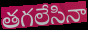
తగలేసినా